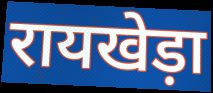
रायखेड़ा